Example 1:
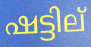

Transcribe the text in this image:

ഷട്ടില്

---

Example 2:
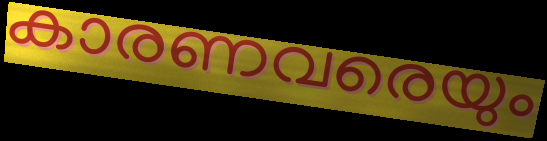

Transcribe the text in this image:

കാരണവരെയും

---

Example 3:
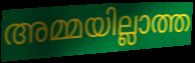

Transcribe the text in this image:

അമ്മയില്ലാത്ത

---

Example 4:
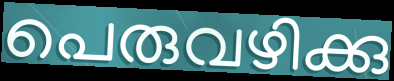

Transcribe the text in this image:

പെരുവഴിക്കു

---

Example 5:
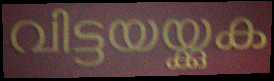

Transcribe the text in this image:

വിട്ടയയ്ക്കുക